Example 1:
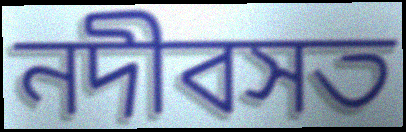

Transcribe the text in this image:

নদীবসত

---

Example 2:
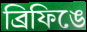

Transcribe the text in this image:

ব্রিফিঙে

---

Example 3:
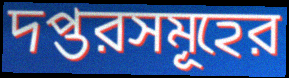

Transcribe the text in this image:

দপ্তরসমূহের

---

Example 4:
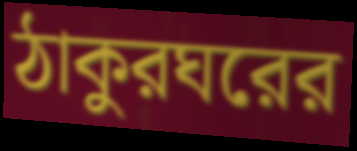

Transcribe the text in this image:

ঠাকুরঘরের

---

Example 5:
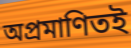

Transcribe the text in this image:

অপ্রমাণিতই